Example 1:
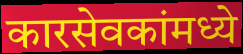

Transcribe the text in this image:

कारसेवकांमध्ये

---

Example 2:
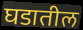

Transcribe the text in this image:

घडातील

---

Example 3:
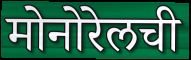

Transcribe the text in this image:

मोनोरेलची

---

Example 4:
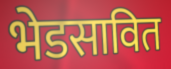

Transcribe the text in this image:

भेडसावित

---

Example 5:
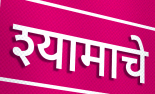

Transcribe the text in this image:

श्यामाचे